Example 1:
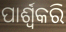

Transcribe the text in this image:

ପାର୍ଶ୍ଵକରି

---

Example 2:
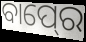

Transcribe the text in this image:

ବାପ୍‍ରେ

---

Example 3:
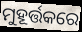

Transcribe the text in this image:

ମୁହୂର୍ତ୍ତକରେ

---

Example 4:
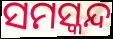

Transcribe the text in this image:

ସମସ୍କନ୍ଦ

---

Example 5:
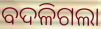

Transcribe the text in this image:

ବଦଳିଗଲା